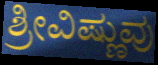
ಶ್ರೀವಿಷ್ಣುವು